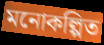
মনোকল্পিত